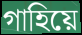
গাহিয়ে